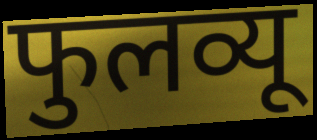
फुलव्यू